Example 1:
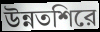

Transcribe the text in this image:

উন্নতশিরে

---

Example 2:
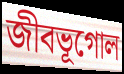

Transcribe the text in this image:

জীবভূগোল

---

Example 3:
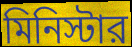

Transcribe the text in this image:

মিনিস্টার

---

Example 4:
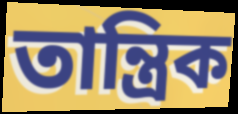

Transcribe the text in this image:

তান্ত্রিক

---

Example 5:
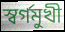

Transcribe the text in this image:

স্বর্গমুখী